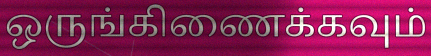
ஒருங்கிணைக்கவும்